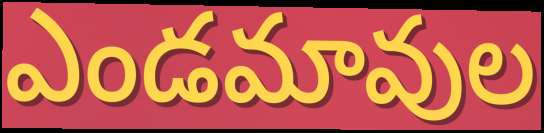
ఎండమావుల